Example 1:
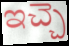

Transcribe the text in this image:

ఇచ్చె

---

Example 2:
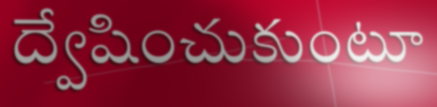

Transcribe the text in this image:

ద్వేషించుకుంటూ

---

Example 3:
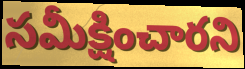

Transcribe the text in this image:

సమీక్షించారని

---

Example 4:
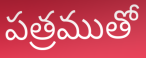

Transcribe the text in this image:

పత్రముతో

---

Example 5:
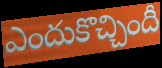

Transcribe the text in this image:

ఎందుకొచ్చిందీ